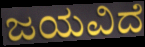
ಜಯವಿದೆ